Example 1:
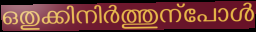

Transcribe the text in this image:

ഒതുക്കിനിർത്തുന്പോൾ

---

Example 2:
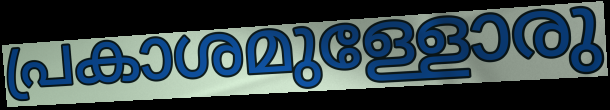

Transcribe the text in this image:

പ്രകാശമുള്ളോരു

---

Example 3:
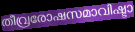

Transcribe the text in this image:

തീവ്രരോഷസമാവിഷ്ടാ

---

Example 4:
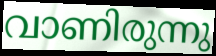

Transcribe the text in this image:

വാണിരുന്നു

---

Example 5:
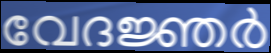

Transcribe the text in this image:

വേദജ്ഞർ